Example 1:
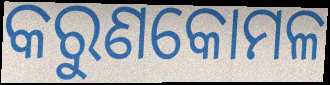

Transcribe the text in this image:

କରୁଣକୋମଳ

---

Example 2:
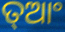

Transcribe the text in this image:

ତ୍ଆଂ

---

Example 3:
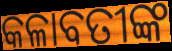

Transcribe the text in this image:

କଳାବତୀଙ୍କ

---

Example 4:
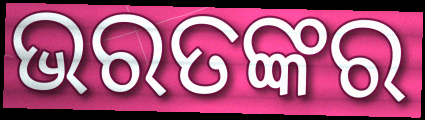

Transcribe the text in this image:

ଭରତଙ୍କର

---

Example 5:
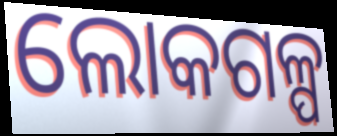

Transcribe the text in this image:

ଲୋକଗଳ୍ପ